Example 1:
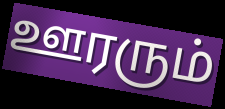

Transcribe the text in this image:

ஊரரும்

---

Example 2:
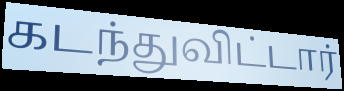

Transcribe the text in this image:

கடந்துவிட்டார்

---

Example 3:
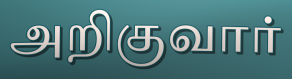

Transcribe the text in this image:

அறிகுவார்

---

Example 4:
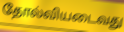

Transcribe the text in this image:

தோல்வியடைவது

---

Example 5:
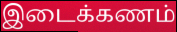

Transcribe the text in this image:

இடைக்கணம்